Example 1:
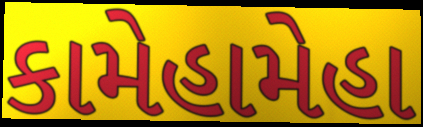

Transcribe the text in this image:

કામેહામેહા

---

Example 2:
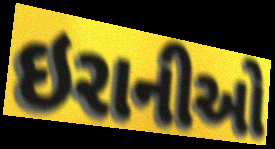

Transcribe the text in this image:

ઇરાનીઓ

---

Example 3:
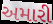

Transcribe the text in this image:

અમારી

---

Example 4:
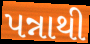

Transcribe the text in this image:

પન્નાથી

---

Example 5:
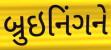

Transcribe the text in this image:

બ્રુઇનિંગને